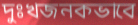
দুঃখজনকভাবে